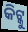
କିଟ୍କୁ